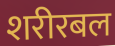
शरीरबल